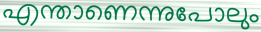
എന്താണെന്നുപോലും